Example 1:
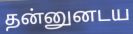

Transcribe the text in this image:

தன்னுனடய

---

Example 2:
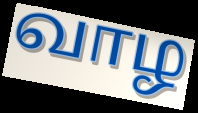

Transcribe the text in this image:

வாழ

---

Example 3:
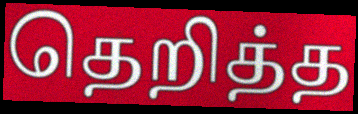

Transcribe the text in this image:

தெறித்த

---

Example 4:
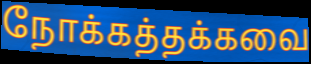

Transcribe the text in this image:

நோக்கத்தக்கவை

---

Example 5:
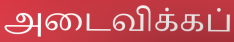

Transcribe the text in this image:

அடைவிக்கப்